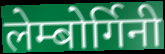
लेम्बोर्गिनी